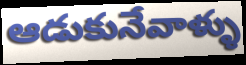
ఆడుకునేవాళ్ళు